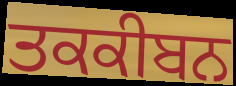
ਤਕਕੀਬਨ